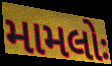
મામલોઃ